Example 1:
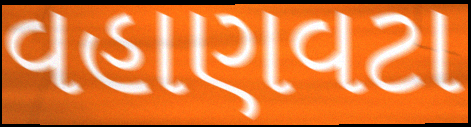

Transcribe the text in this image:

વહાણવટા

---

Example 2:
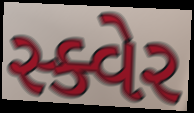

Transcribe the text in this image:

સ્ક્વેર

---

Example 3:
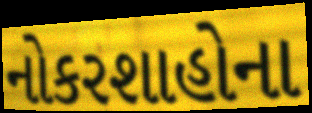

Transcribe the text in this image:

નોકરશાહોના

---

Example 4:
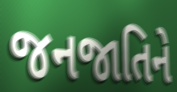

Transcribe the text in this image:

જનજાતિને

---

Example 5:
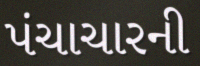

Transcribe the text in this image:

પંચાચારની